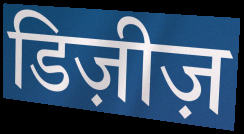
डिज़ीज़